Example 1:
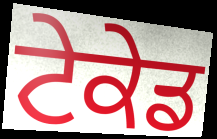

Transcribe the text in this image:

ਟੇਕੇਡ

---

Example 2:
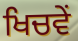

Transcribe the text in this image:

ਖਿਚਵੇਂ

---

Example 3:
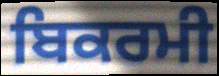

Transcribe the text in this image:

ਬਿਕਰਮੀ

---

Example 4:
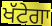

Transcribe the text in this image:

ਖੱਟੇਗਾ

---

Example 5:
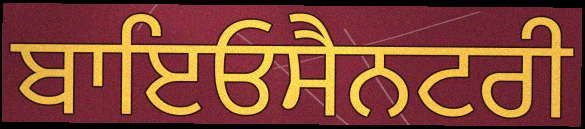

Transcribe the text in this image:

ਬਾਇਓਸੈਨਟਰੀ